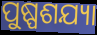
ପୁଷ୍ପଶଯ୍ୟା